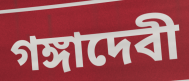
গঙ্গাদেবী